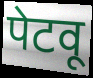
पेटवू